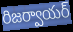
రిజర్వాయర్